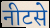
नीटसे